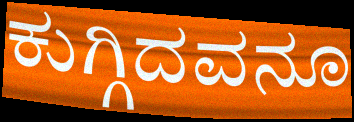
ಕುಗ್ಗಿದವನೂ